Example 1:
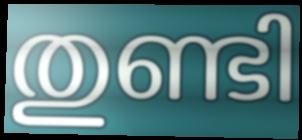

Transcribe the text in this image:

തുണ്ടി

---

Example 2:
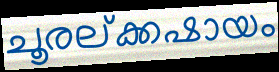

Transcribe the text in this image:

ചൂരല്ക്കഷായം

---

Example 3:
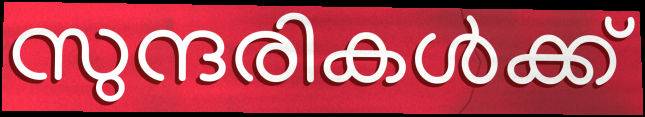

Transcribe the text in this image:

സുന്ദരികൾക്ക്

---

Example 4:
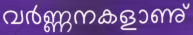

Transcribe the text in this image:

വർണ്ണനകളാണു്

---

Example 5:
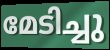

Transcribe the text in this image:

മേടിച്ചു